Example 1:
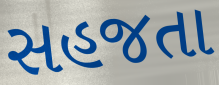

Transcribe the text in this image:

સહજતા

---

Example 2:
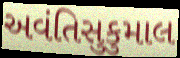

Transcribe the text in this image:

અવંતિસુકુમાલ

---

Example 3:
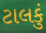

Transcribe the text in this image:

ટાલકું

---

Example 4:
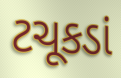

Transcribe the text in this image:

ટચૂકડાં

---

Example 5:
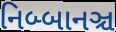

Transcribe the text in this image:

નિબ્બાનઞ્ચ